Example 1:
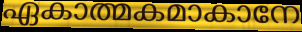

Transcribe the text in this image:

ഏകാത്മകമാകാനേ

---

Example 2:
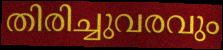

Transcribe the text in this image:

തിരിച്ചുവരവും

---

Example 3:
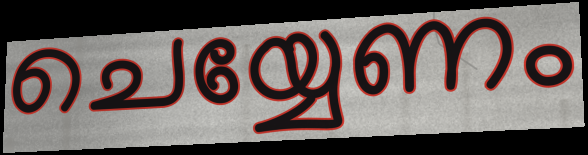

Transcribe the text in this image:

ചെയ്യേണം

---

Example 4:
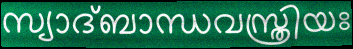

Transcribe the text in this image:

സ്യാദ്ബാന്ധവസ്ത്രിയഃ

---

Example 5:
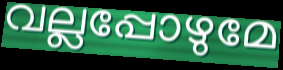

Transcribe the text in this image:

വല്ലപ്പോഴുമേ